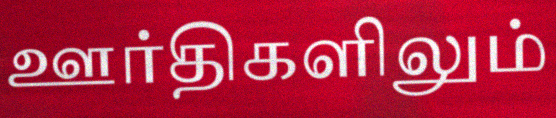
ஊர்திகளிலும்